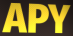
APY